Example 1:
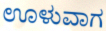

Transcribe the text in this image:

ಊಳುವಾಗ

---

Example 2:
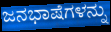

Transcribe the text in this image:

ಜನಭಾಷೆಗಳನ್ನು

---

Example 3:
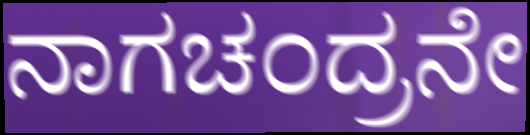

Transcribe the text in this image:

ನಾಗಚಂದ್ರನೇ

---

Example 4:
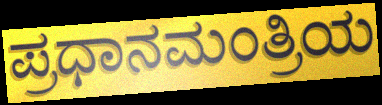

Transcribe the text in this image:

ಪ್ರಧಾನಮಂತ್ರಿಯ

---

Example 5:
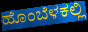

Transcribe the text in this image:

ಹೊಂಬೆಳಕಲ್ಲಿ